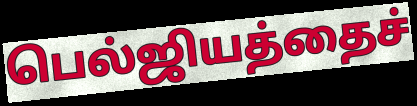
பெல்ஜியத்தைச்